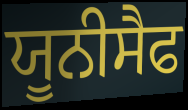
ਯੂਨੀਸੈਫ